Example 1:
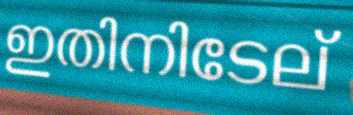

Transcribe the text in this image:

ഇതിനിടേല്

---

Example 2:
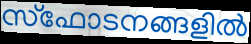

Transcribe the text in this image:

സ്ഫോടനങ്ങളിൽ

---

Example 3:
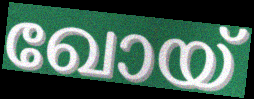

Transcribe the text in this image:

ഖോയ്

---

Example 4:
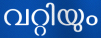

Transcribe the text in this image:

വറ്റിയും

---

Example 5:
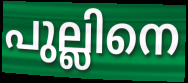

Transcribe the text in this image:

പുല്ലിനെ